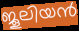
ജൂലിയൻ